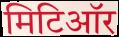
मिटिऑर